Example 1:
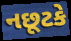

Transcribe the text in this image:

નછૂટકે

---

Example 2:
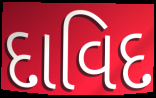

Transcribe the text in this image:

દાવિદ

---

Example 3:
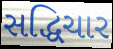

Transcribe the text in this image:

સદ્ધિચાર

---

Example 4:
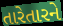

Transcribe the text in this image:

તારેતારને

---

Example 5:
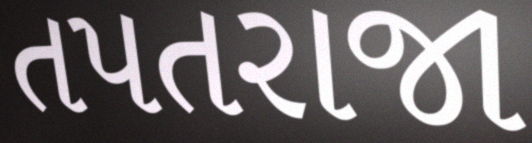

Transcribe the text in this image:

તપતરાજા